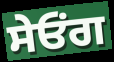
ਸੇਓਂਗ